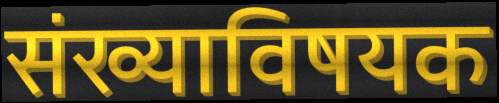
संख्याविषयक